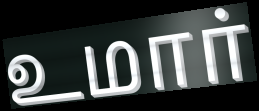
உமார்